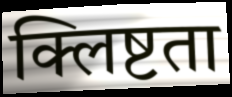
क्लिष्टता